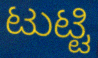
ಟುಟ್ಟಿ